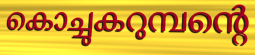
കൊച്ചുകറുമ്പന്റെ